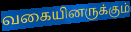
வகையினருக்கும்